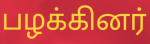
பழக்கினர்